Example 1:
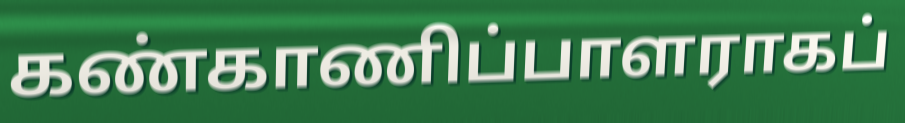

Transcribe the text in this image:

கண்காணிப்பாளராகப்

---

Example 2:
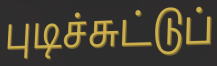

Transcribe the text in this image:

புடிச்சுட்டுப்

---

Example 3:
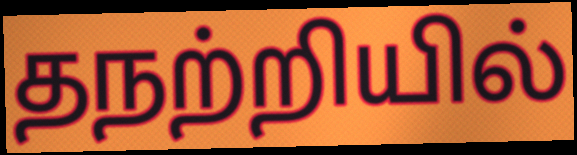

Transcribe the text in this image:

தநற்றியில்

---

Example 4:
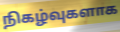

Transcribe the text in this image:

நிகழ்வுகளாக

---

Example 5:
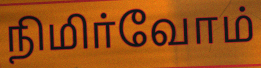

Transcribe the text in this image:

நிமிர்வோம்